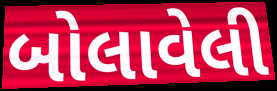
બોલાવેલી